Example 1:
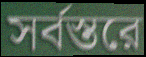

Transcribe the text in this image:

সর্বস্তরে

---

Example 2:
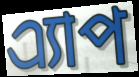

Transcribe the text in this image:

এ্যাপ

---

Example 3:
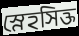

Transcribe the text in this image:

স্নেহসিক্ত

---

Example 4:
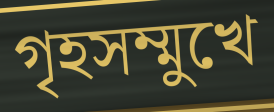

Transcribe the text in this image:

গৃহসম্মুখে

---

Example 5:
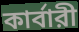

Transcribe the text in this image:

কার্বারী